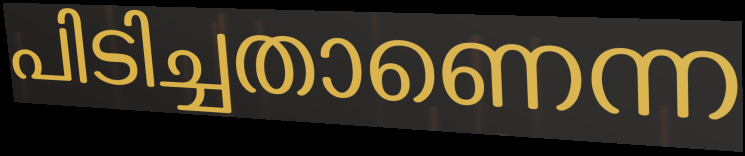
പിടിച്ചതാണെന്ന